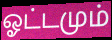
ஓட்டமும்